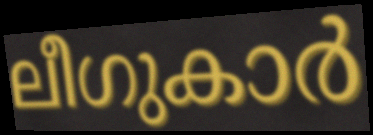
ലീഗുകാർ